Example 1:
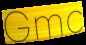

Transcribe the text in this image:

Gmc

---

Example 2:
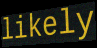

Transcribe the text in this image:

likely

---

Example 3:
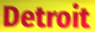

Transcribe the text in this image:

Detroit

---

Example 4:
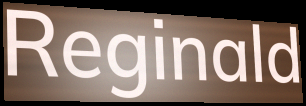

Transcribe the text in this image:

Reginald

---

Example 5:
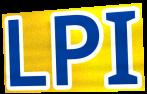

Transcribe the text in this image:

LPI